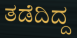
ತಡೆದಿದ್ದ